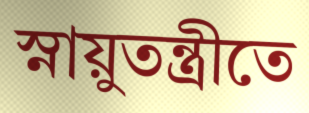
স্নায়ুতন্ত্রীতে